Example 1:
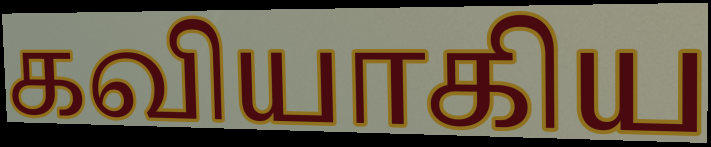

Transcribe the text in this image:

கவியாகிய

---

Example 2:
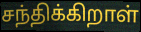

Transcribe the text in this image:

சந்திக்கிறாள்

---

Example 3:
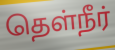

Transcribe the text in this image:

தெள்நீர்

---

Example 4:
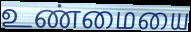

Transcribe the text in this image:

உண்மையை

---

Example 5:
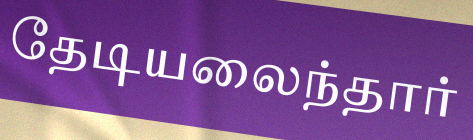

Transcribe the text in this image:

தேடியலைந்தார்